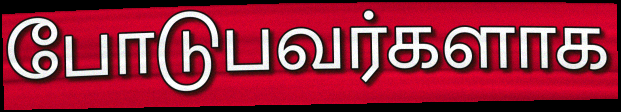
போடுபவர்களாக